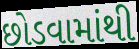
છોડવામાંથી